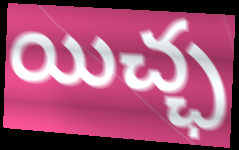
యిచ్ఛ